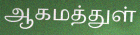
ஆகமத்துள்